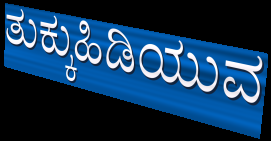
ತುಕ್ಕುಹಿಡಿಯುವ